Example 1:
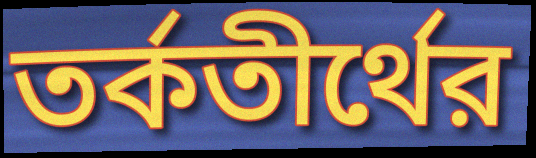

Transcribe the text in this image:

তর্কতীর্থের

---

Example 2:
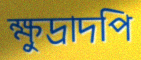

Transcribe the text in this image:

ক্ষুদ্রাদপি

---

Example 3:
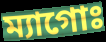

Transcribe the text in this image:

ম্যাগোঃ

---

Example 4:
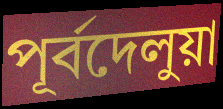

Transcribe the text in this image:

পূর্বদেলুয়া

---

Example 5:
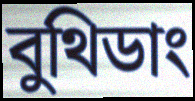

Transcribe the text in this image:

বুথিডাং